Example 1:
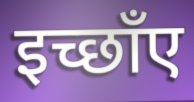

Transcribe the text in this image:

इच्छाँए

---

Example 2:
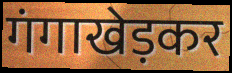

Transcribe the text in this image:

गंगाखेड़कर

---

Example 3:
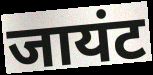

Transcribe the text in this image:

जायंट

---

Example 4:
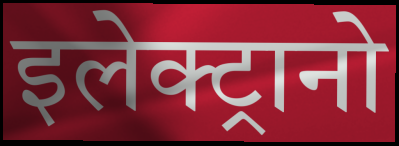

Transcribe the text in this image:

इलेक्ट्रानो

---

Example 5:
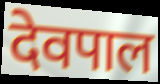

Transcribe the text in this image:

देवपाल